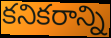
కనికరాన్ని